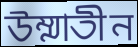
উম্মাতীন